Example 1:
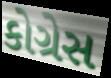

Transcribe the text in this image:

કોગ્રેસ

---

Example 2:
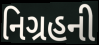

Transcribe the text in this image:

નિગ્રહની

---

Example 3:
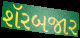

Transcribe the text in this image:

શૅરબજાર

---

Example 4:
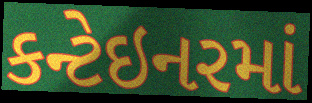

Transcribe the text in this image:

કન્ટેઇનરમાં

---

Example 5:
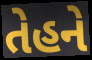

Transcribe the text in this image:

તેહને